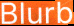
Blurb